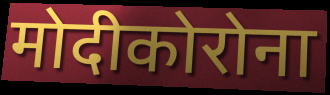
मोदीकोरोना